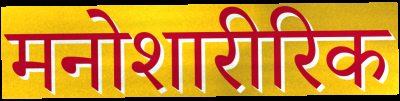
मनोशारीरिक